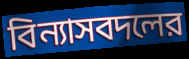
বিন্যাসবদলের